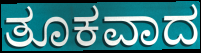
ತೂಕವಾದ